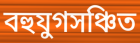
বহুযুগসঞ্চিত